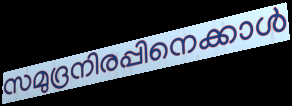
സമുദ്രനിരപ്പിനെക്കാൾ